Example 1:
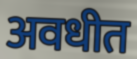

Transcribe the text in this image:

अवधीत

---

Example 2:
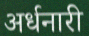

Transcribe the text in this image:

अर्धनारी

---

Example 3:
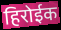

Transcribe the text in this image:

हिरोईक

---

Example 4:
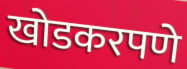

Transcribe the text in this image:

खोडकरपणे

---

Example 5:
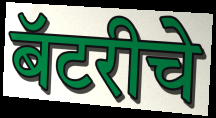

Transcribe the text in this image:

बॅटरीचे